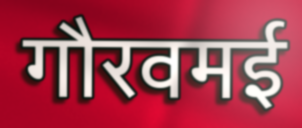
गौरवमई